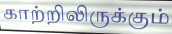
காற்றிலிருக்கும்